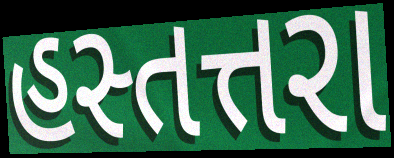
હસ્તત્તરા